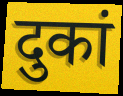
दुकां